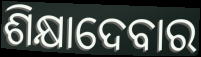
ଶିକ୍ଷାଦେବାର